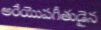
అరేయొపగీతుడైన